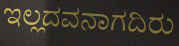
ಇಲ್ಲದವನಾಗದಿರು